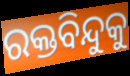
ରକ୍ତବିନ୍ଦୁକୁ